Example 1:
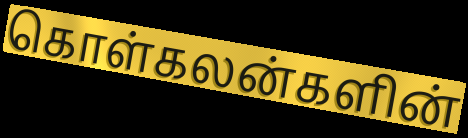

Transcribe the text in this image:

கொள்கலன்களின்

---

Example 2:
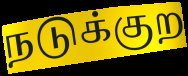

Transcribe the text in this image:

நடுக்குற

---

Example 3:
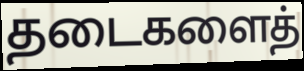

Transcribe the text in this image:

தடைகளைத்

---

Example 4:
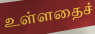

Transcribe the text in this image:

உள்ளதைச்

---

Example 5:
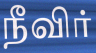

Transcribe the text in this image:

நீவிர்